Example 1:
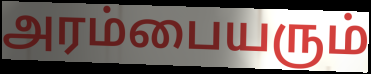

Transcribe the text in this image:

அரம்பையரும்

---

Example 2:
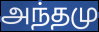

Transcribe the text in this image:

அந்தமு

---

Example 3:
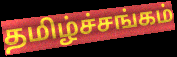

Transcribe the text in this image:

தமிழ்ச்சங்கம்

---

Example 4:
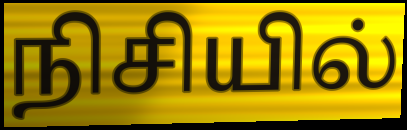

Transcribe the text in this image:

நிசியில்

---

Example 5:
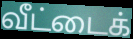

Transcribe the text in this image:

வீட்டைக்